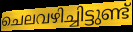
ചെലവഴിച്ചിട്ടുണ്ട്